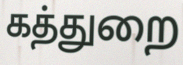
கத்துறை